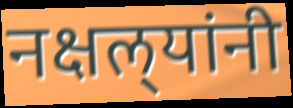
नक्षल्यांनी